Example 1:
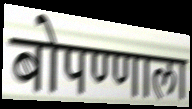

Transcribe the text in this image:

बोपण्णाला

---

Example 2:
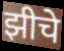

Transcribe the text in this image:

झीचे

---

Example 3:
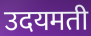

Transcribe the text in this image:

उदयमती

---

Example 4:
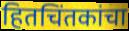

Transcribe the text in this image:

हितचिंतकांचा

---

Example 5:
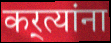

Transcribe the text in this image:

कर्त्यांना